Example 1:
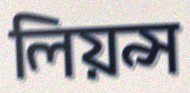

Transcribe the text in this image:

লিয়ন্স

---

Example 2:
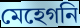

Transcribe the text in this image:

মেহেগনি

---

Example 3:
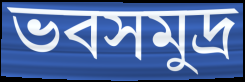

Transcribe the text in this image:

ভবসমুদ্র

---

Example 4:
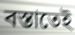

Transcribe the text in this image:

বস্তাতেই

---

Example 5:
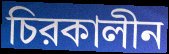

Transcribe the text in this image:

চিরকালীন